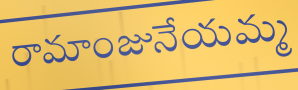
రామాంజునేయమ్మ